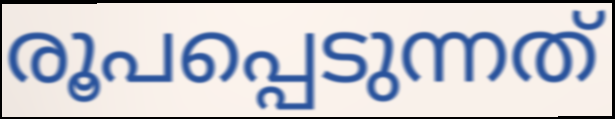
രൂപപ്പെടുന്നത്